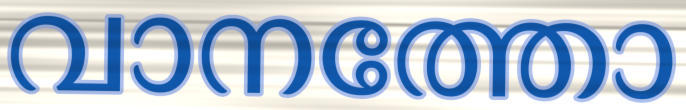
വാനത്തോ